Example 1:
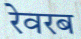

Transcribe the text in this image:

रेवरब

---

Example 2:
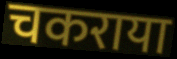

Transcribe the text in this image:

चकराया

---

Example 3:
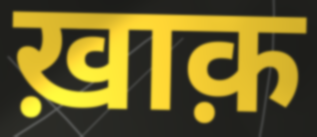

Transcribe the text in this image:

ख़ाक़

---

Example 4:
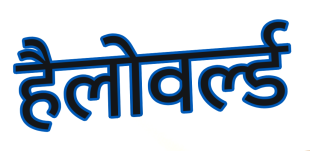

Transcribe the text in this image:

हैलोवर्ल्ड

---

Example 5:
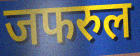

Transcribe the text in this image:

जफरुल